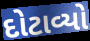
દોટાવ્યો